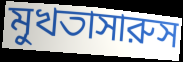
মুখতাসারুস